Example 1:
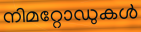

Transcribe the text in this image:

നിമറ്റോഡുകൾ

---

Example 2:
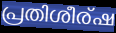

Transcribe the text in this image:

പ്രതിശീര്ഷ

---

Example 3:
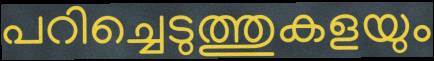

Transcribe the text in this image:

പറിച്ചെടുത്തുകളയും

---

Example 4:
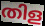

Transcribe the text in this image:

തിള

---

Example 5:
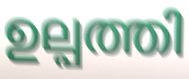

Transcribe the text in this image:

ഉല്പത്തി